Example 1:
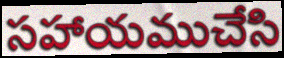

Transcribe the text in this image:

సహాయముచేసి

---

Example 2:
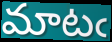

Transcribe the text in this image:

మాటఁ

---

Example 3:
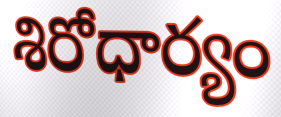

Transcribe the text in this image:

శిరోధార్యం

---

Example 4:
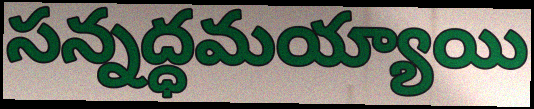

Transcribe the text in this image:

సన్నద్ధమయ్యాయి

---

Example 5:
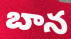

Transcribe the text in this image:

బాన